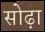
सोढ़ा